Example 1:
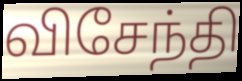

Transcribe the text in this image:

விசேந்தி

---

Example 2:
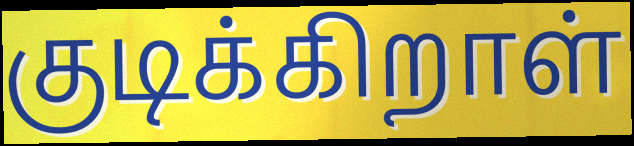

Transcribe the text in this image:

குடிக்கிறாள்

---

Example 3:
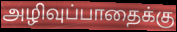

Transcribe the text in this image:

அழிவுப்பாதைக்கு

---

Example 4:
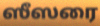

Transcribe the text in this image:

ஸீஸரை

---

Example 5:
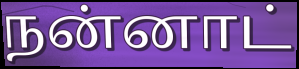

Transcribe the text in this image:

நன்னாட்